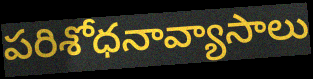
పరిశోధనావ్యాసాలు